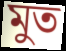
মুত